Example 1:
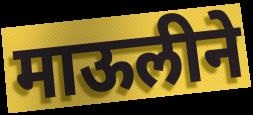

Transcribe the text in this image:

माऊलीने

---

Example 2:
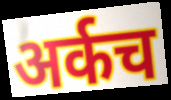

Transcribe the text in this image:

अर्कच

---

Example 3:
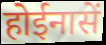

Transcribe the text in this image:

होईनासें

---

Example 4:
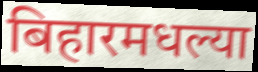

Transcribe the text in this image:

बिहारमधल्या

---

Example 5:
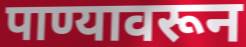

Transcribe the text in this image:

पाण्यावरून